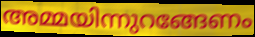
അമ്മയിന്നുറങ്ങേണം